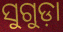
ସୁଗୁଡ଼ା